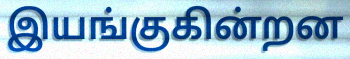
இயங்குகின்றன